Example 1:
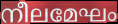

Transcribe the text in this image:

നീലമേഘം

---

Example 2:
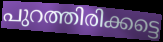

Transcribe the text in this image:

പുറത്തിരിക്കട്ടെ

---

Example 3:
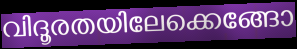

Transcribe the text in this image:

വിദൂരതയിലേക്കെങ്ങോ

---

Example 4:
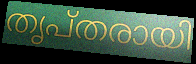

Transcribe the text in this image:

തൃപ്തരായി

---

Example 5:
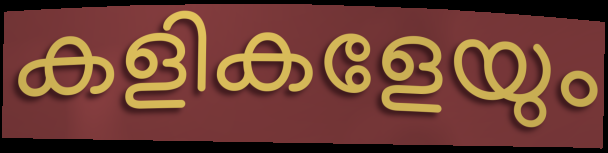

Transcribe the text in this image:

കളികളേയും